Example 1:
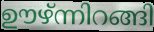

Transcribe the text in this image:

ഊഴ്ന്നിറങ്ങി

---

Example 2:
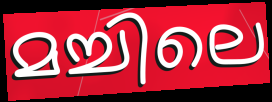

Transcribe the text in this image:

മച്ചിലെ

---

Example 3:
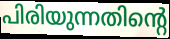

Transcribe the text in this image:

പിരിയുന്നതിന്റെ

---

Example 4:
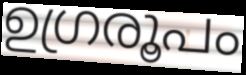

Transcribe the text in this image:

ഉഗ്രരൂപം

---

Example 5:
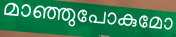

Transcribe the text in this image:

മാഞ്ഞുപോകുമോ